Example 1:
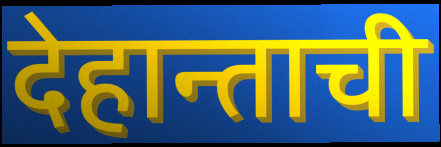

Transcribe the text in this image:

देहान्ताची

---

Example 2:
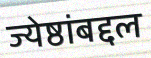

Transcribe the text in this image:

ज्येष्ठांबद्दल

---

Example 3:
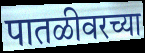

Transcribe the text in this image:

पातळीवरच्या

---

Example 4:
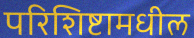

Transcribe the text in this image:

परिशिष्टामधील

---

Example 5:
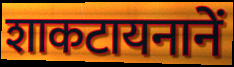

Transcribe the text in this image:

शाकटायनानें